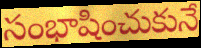
సంభాషించుకునే